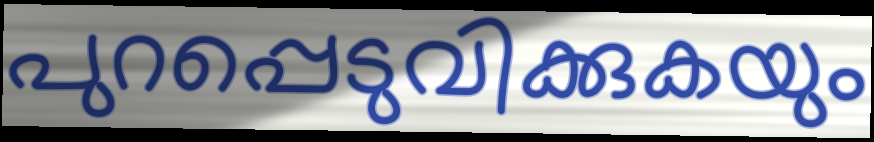
പുറപ്പെടുവിക്കുകയും